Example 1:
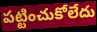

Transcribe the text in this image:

పట్టించుకోలేదు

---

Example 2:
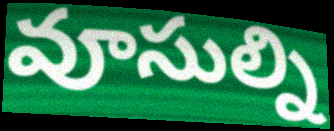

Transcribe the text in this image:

వూసుల్ని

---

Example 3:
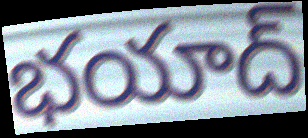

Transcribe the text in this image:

భయాద్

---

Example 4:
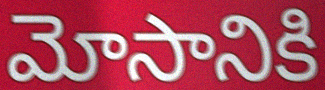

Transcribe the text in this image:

మోసానికి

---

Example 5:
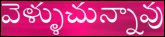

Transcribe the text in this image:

వెళ్ళుచున్నావు